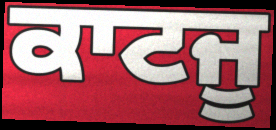
ਕਾਟਜੂ